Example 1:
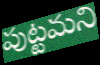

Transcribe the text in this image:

పుట్టమని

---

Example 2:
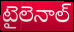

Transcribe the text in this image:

టైలెనాల్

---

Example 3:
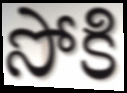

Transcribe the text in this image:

సోకి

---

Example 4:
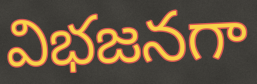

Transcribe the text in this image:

విభజనగా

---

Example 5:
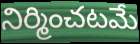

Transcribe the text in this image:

నిర్మించటమే